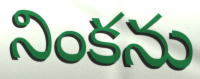
నింకను